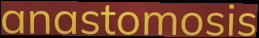
anastomosis